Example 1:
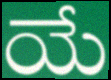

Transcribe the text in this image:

యే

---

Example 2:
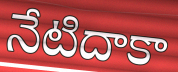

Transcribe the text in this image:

నేటిదాకా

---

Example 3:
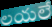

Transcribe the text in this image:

లయలే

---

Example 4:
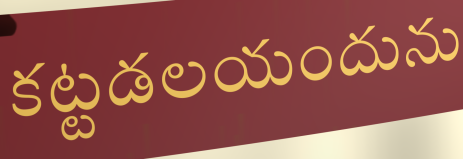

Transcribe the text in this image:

కట్టడలయందును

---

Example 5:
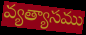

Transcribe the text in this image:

వ్యత్యాసము